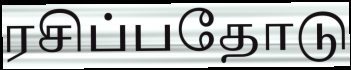
ரசிப்பதோடு